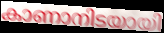
കാണാനിടയായി